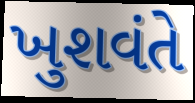
ખુશવંતે